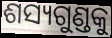
ଶସ୍ୟଗୁଣ୍ଡକୁ